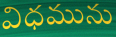
విధమును